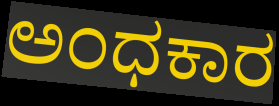
ಅಂಧಕಾರ